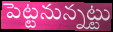
పెట్టనున్నట్టు